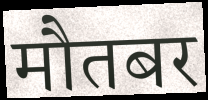
मौतबर